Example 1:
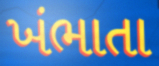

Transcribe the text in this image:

ખંભાતા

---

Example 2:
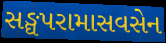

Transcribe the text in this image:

સઙ્ઘપરામાસવસેન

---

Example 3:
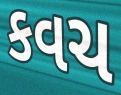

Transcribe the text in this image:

કવચ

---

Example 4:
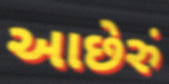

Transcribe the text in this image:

આછેરું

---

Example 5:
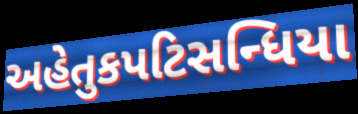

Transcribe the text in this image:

અહેતુકપટિસન્ધિયા